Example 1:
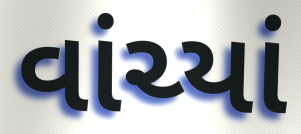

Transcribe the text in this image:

વાંચ્યાં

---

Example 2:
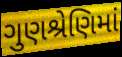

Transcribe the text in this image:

ગુણશ્રેણિમાં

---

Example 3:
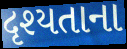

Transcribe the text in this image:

દૃશ્યતાના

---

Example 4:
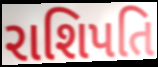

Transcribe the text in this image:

રાશિપતિ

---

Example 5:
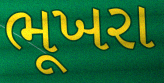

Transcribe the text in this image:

ભૂખરા